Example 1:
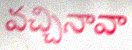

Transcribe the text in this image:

వచ్చినావా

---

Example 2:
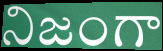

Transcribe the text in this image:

నిజంగా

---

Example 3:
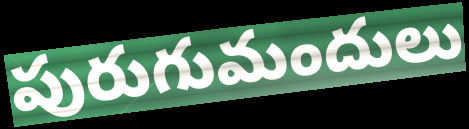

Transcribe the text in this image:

పురుగుమందులు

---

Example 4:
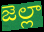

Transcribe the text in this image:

జెల్లా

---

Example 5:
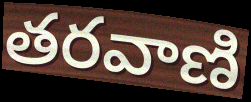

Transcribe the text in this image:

తరవాణి